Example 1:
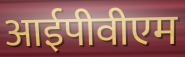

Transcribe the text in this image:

आईपीवीएम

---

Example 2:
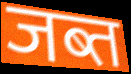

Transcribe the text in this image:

जब्त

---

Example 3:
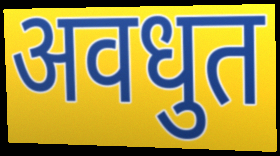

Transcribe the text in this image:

अवधुत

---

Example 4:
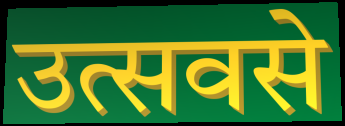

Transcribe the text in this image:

उत्सवसे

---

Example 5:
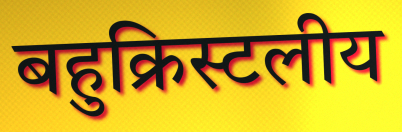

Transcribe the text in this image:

बहुक्रिस्टलीय